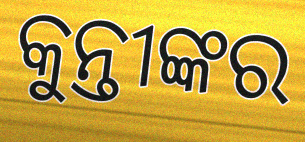
କୁନ୍ତୀଙ୍କର